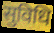
सुविधि